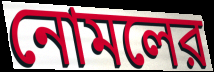
নোমলের